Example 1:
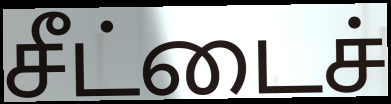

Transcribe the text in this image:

சீட்டைச்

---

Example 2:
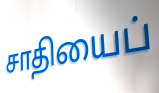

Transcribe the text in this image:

சாதியைப்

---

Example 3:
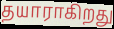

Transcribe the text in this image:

தயாராகிறது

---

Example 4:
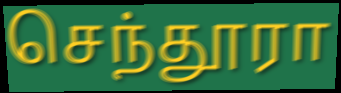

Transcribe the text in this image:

செந்தூரா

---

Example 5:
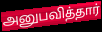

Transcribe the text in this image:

அனுபவித்தார்